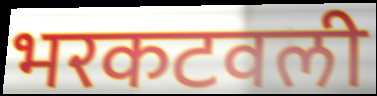
भरकटवली